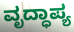
ವೃದ್ಧಾಪ್ಯ